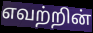
எவற்றின்